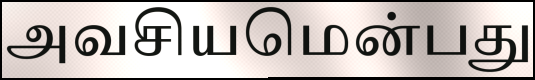
அவசியமென்பது